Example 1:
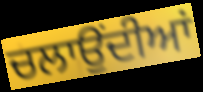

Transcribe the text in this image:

ਚਲਾਉਂਦੀਆਂ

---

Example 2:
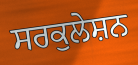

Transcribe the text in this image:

ਸਰਕੁਲੇਸ਼ਨ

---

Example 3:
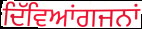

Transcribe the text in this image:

ਦਿੱਵਿਆਂਗਜਨਾਂ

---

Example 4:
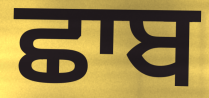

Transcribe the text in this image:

ਛਾਬ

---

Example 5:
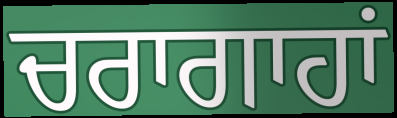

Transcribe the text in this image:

ਚਰਾਗਾਹਾਂ